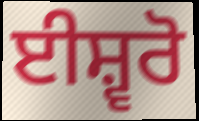
ਈਸ਼੍ਵਰੋ